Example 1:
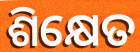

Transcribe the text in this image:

ଶିକ୍ଷେତ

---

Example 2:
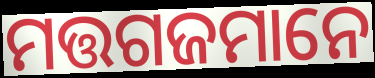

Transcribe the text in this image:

ମତ୍ତଗଜମାନେ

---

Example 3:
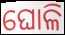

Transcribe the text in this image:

ଘୋଳି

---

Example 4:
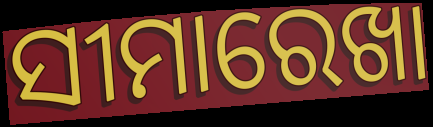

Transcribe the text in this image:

ସୀମାରେଖା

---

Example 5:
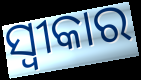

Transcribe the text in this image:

ସ୍ୱୀକାର